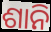
ଶାନି